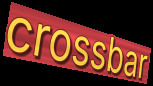
crossbar